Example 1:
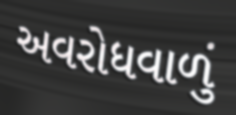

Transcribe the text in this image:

અવરોધવાળું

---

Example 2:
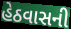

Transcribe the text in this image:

હેઠવાસની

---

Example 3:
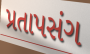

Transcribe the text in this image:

પ્રતાપસંગ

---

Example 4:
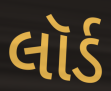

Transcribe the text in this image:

લૉર્ડ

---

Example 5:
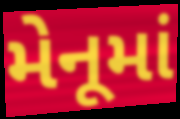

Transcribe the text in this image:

મેનૂમાં